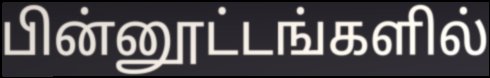
பின்னூட்டங்களில்